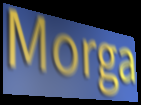
Morga